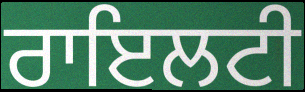
ਰਾਇਲਟੀ